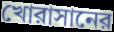
খোরাসানের